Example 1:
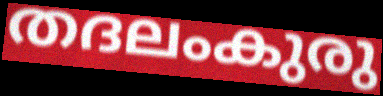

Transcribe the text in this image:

തദലംകുരു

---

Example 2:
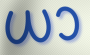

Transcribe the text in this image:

ധാ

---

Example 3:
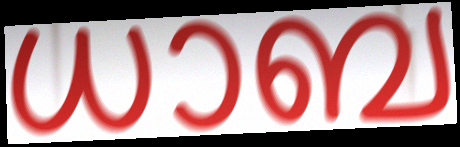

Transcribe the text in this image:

ധാബ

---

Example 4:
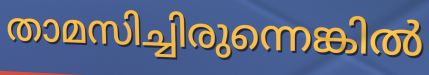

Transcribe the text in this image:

താമസിച്ചിരുന്നെങ്കിൽ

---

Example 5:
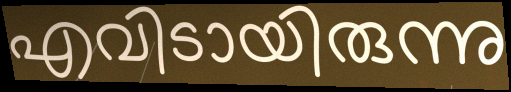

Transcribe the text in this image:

എവിടായിരുന്നു